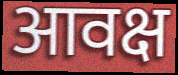
आवक्ष